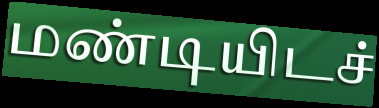
மண்டியிடச்